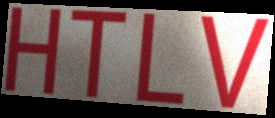
HTLV